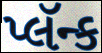
પ્લૅન્ક